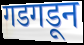
गडगडून